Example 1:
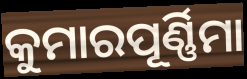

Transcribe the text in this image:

କୁମାରପୂର୍ଣ୍ଣିମା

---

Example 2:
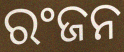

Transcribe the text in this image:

ରଂଜନ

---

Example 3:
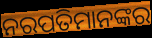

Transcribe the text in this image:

ନରପତିମାନଙ୍କର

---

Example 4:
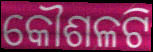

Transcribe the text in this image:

କୌଶଳଟି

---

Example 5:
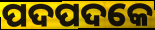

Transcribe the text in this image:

ପଦପଦକେ